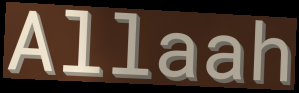
Allaah